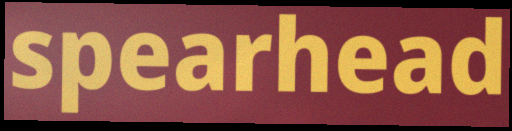
spearhead